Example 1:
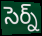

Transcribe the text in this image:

సెర్న్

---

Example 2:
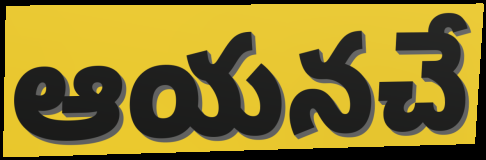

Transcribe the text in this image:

ఆయనచే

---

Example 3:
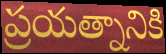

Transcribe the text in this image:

ప్రయత్నానికి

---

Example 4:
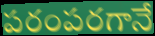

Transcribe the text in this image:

పరంపరగానే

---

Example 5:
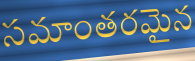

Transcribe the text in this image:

సమాంతరమైన